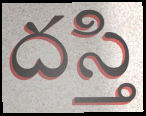
దస్తి